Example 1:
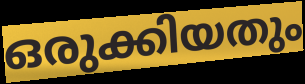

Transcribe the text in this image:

ഒരുക്കിയതും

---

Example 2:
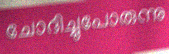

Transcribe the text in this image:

ചോദിച്ചുപോരുന്നു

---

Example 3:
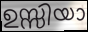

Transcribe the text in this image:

ഉസ്സിയാ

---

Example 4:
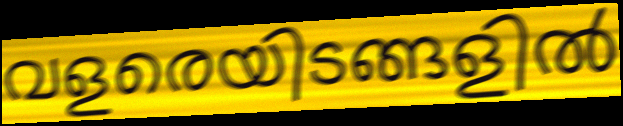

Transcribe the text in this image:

വളരെയിടങ്ങളിൽ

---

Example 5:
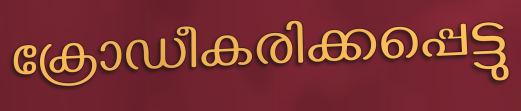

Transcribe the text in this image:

ക്രോഡീകരിക്കപ്പെട്ടു